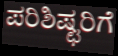
ಪರಿಶಿಷ್ಟರಿಗೆ